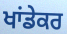
ਖਾਂਡੇਕਰ